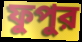
ফুপুর